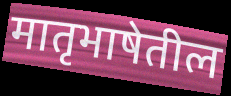
मातृभाषेतील